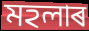
মহলাৰ